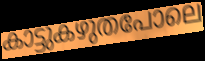
കാട്ടുകഴുതപോലെ